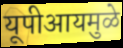
यूपीआयमुळे